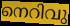
നെറിവു